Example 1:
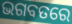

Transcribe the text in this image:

ଭଗବତରେ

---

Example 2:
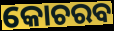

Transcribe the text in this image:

କୋଚରବ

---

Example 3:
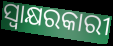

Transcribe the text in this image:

ସ୍ୱାକ୍ଷରକାରୀ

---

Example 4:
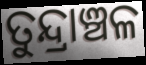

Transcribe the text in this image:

ତୁନ୍ଦ୍ରାଞ୍ଚଳ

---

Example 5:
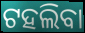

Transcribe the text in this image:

ଟହଲିବା